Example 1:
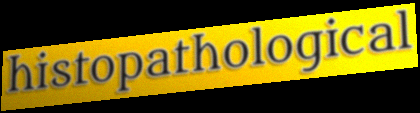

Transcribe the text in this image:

histopathological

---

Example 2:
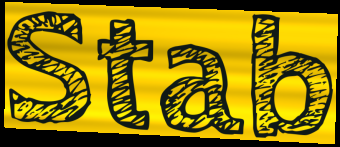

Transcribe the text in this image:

Stab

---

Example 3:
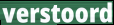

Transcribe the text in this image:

verstoord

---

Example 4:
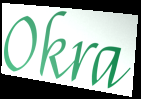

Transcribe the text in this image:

Okra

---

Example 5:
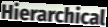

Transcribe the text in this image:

Hierarchical